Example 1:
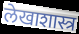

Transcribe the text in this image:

लेखाशास्त्र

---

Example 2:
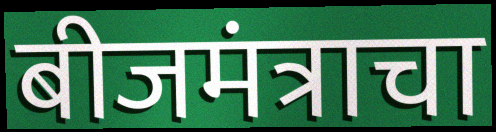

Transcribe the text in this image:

बीजमंत्राचा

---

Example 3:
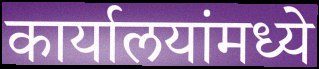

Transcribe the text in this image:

कार्यालयांमध्ये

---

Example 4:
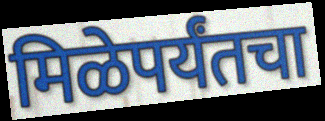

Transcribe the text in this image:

मिळेपर्यंतचा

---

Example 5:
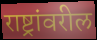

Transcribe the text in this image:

राष्ट्रांवरील